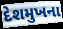
દેશમુખના